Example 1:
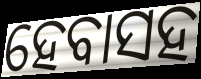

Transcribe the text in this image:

ହେବାସହ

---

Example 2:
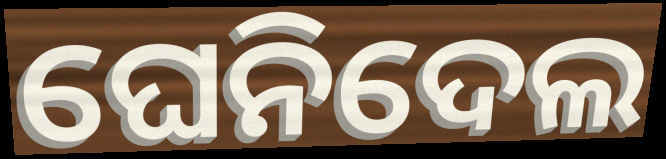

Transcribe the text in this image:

ଘେନିଦେଲ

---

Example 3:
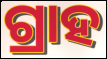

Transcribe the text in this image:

ଗ୍ରାହ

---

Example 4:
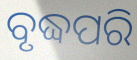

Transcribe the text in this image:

ବୃଦ୍ଧପରି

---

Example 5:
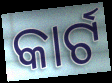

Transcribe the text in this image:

କାର୍ଟ